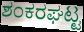
ಶಂಕರಘಟ್ಟ